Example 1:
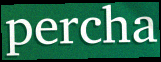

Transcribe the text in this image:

percha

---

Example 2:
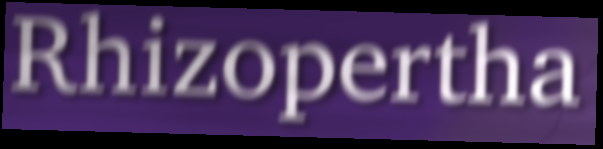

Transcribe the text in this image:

Rhizopertha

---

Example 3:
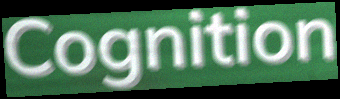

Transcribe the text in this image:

Cognition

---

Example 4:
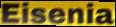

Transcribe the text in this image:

Eisenia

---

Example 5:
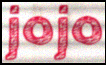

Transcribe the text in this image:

jojo